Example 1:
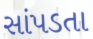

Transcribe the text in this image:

સાંપડતા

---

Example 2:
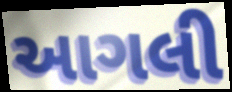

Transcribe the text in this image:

આગલી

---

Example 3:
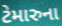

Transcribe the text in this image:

ટેમારુના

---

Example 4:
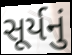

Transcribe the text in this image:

સૂર્યનું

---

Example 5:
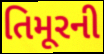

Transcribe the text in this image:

તિમૂરની